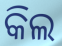
କିଲ